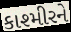
કાશ્મીરને